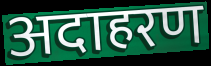
अदाहरण